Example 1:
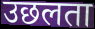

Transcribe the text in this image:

उछलता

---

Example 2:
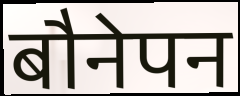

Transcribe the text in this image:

बौनेपन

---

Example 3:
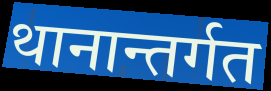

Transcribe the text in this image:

थानान्तर्गत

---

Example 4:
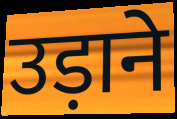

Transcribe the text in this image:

उड़ाने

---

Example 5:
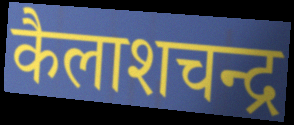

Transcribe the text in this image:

कैलाशचन्द्र